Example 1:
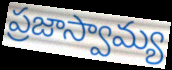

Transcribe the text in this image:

ప్రజాస్వామ్య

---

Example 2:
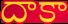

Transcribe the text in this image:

దాకా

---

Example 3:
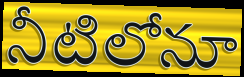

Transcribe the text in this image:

నీటిలోనూ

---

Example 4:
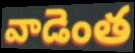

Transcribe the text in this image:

వాడెంత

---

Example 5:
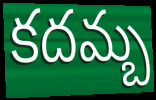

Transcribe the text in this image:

కదమ్బ